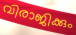
വിരാജിക്കും